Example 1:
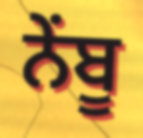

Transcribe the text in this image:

ਨੇਂਬੂ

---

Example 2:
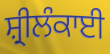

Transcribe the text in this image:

ਸ਼੍ਰੀਲੰਕਾਈ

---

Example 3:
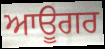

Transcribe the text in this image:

ਆਊਗਰ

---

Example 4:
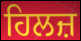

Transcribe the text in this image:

ਹਿਲਜ਼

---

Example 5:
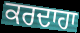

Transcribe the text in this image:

ਕਰਦਾਹਾ